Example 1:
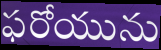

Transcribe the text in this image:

ఫరోయును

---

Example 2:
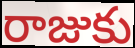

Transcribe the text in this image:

రాజుకు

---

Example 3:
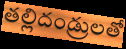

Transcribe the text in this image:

తల్లిదండ్రులతో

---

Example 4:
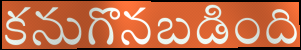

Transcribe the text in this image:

కనుగొనబడింది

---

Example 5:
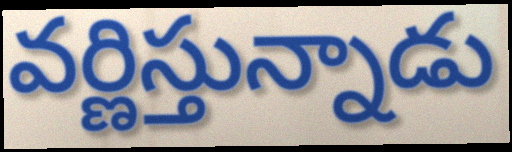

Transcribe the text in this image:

వర్ణిస్తున్నాడు